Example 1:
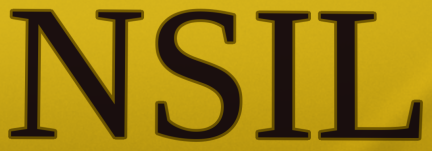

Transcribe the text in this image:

NSIL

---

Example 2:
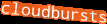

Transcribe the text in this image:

cloudbursts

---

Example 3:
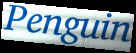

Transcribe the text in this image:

Penguin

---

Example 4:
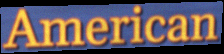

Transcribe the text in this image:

American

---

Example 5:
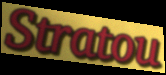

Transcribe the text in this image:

Stratou